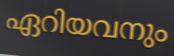
ഏറിയവനും